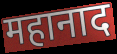
महानाद